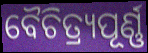
ବୈଚିତ୍ର୍ୟପୂର୍ଣ୍ଣ